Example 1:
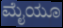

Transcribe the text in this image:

ಮೈಯೂ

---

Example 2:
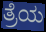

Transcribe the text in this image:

ತ್ರೆಯ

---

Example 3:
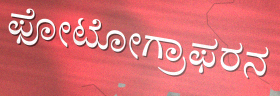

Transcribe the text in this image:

ಫೋಟೋಗ್ರಾಫರನ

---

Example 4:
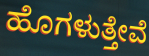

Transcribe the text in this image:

ಹೊಗಳುತ್ತೇವೆ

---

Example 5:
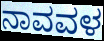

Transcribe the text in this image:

ನಾವವಳ